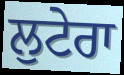
ਲੁਟੇਰਾ